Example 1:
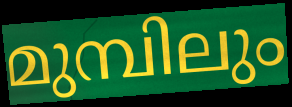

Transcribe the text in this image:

മുമ്പിലും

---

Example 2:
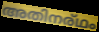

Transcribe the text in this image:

അതിനര്ഥം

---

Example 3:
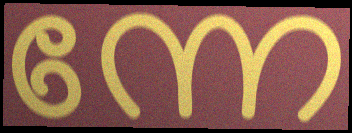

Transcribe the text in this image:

ന്നേ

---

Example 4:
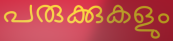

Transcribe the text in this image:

പരുക്കുകളും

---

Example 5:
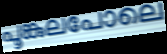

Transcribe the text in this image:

പൂങ്കുലപോലെ